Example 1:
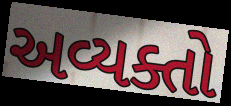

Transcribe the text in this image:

અવ્યક્તો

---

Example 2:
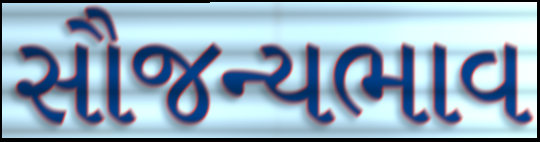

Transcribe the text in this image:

સૌજન્યભાવ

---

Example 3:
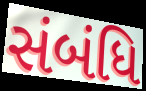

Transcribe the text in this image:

સંબંધિ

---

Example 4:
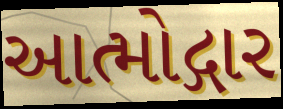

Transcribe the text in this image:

આત્મોદ્ગાર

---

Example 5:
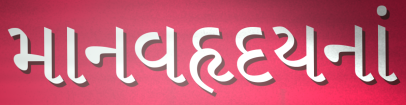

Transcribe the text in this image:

માનવહૃદયનાં